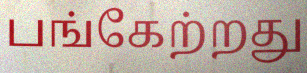
பங்கேற்றது